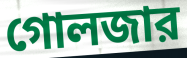
গোলজার